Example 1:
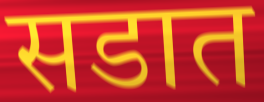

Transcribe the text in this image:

सडात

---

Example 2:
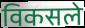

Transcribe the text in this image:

विकसले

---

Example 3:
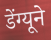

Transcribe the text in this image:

डेंग्यूने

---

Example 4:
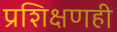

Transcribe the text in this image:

प्रशिक्षणही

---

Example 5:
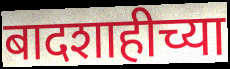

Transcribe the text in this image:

बादशाहीच्या